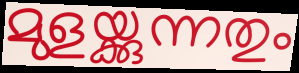
മുളയ്ക്കുന്നതും